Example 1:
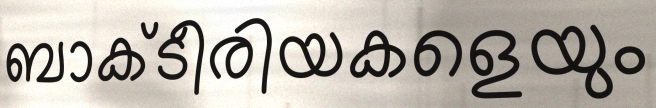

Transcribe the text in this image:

ബാക്ടീരിയകളെയും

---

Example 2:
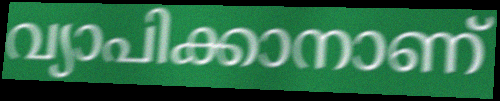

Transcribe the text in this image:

വ്യാപിക്കാനാണ്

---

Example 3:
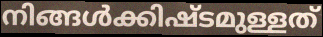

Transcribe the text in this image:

നിങ്ങൾക്കിഷ്ടമുള്ളത്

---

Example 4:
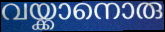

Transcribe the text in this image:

വയ്ക്കാനൊരു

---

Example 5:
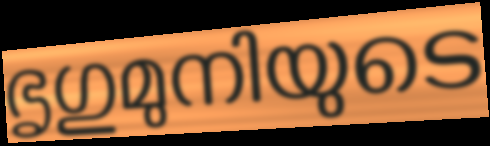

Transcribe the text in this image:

ഭൃഗുമുനിയുടെ